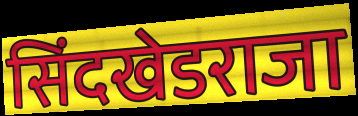
सिंदखेडराजा